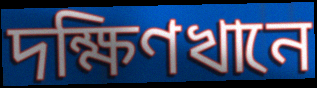
দক্ষিণখানে